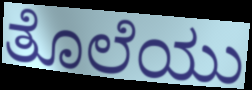
ತೊಲೆಯು